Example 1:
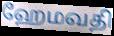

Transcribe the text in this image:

ஹேமவதி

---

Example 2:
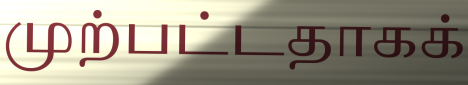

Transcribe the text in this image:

முற்பட்டதாகக்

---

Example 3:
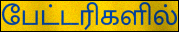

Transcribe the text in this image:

பேட்டரிகளில்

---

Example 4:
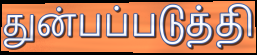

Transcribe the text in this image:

துன்பப்படுத்தி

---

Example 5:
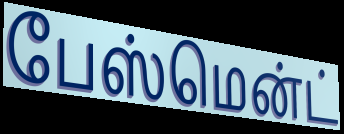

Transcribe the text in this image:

பேஸ்மென்ட்